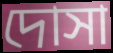
দোসা